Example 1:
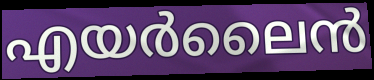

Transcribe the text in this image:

എയർലൈൻ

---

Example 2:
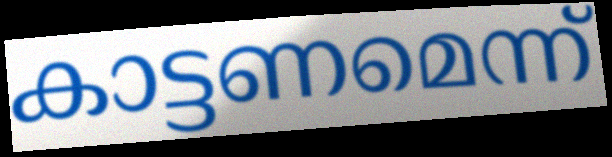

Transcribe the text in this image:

കാട്ടണമെന്ന്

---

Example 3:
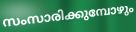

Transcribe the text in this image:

സംസാരിക്കുമ്പോഴും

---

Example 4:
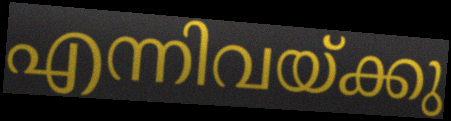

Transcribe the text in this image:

എന്നിവയ്ക്കു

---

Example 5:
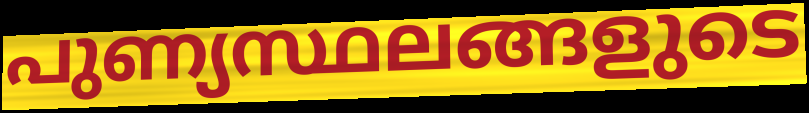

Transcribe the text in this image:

പുണ്യസ്ഥലങ്ങളുടെ